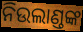
ନିଉଲାଣ୍ଡଙ୍କ